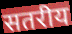
सतरीय